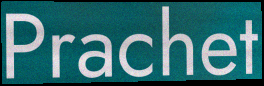
Prachet